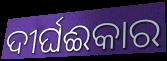
ଦୀର୍ଘଈକାର